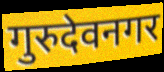
गुरुदेवनगर